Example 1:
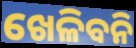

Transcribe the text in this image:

ଖେଳିବନି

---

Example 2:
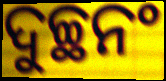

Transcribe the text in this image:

ଦୁଚ୍ଛନଂ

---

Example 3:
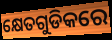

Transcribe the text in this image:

କ୍ଷେତଗୁଡିକରେ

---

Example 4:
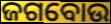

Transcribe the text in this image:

ଜଗବୋଉ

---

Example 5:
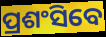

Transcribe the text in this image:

ପ୍ରଶଂସିବେ